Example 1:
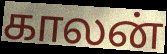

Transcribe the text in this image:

காலன்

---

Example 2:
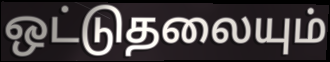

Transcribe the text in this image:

ஒட்டுதலையும்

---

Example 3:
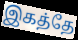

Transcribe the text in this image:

இகத்தே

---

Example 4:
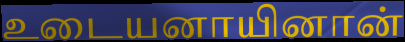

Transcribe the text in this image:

உடையனாயினான்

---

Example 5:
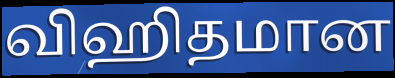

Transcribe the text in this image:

விஹிதமான